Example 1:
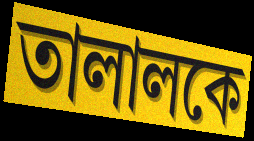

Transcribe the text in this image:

তালালকে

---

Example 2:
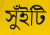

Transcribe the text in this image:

সুঁইটি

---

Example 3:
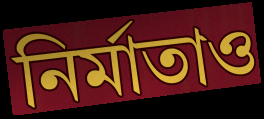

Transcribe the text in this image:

নির্মাতাও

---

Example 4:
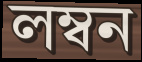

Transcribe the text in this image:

লম্বন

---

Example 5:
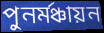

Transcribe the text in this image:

পুনর্মঞ্চায়ন